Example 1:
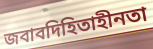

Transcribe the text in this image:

জবাবদিহিতাহীনতা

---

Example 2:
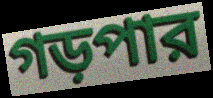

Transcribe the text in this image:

গড়পার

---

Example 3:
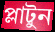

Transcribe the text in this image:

প্লাটুন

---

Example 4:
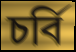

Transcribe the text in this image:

চর্বি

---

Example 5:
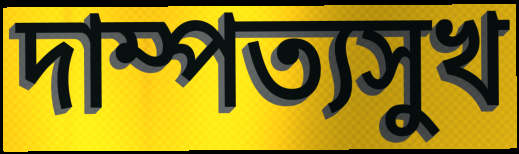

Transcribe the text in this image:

দাম্পত্যসুখ